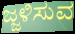
ಜ್ಜಳಿಸುವ